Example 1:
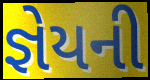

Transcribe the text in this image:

જ્ઞેયની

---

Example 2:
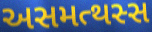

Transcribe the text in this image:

અસમત્થસ્સ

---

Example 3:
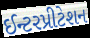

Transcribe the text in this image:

ઈન્ટરપ્રીટેશન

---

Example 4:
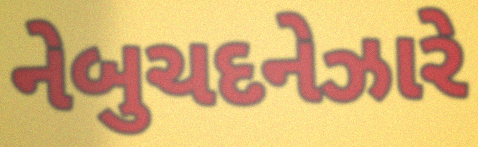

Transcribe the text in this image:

નેબુચદનેઝારે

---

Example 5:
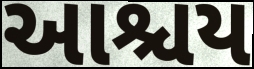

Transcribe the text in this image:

આશ્ચય